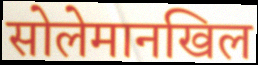
सोलेमानखिल